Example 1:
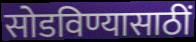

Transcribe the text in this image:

सोडविण्यासाठीं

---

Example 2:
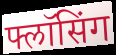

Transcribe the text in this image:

फ्लॉसिंग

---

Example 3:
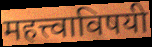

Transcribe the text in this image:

महत्त्वाविषयी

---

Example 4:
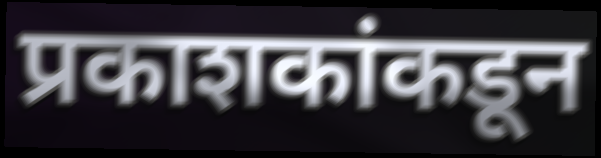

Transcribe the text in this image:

प्रकाशकांकडून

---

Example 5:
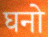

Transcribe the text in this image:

घनो